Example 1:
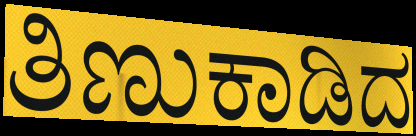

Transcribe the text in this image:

ತಿಣುಕಾಡಿದ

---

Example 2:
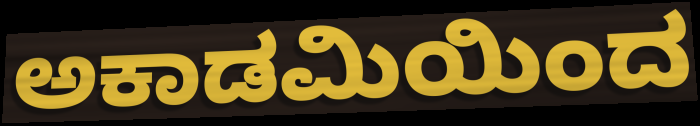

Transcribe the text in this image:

ಅಕಾಡಮಿಯಿಂದ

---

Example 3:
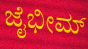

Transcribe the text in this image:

ಜೈಭೀಮ್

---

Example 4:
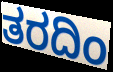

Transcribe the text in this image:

ತರದಿಂ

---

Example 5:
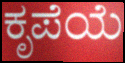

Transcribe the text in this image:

ಕೃಪೆಯೆ